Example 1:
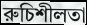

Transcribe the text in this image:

রুচিশীলতা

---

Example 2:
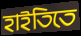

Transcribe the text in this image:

হাইতিতে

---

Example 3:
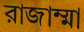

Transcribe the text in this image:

রাজাম্মা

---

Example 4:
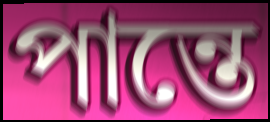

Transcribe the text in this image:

পান্তে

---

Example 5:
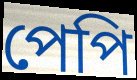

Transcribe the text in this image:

পেপি